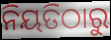
ନିୟତିଠାରୁ